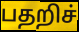
பதறிச்